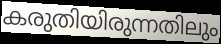
കരുതിയിരുന്നതിലും